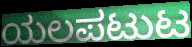
ಯಲಪಟುಟ